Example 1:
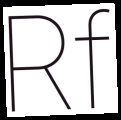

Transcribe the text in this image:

Rf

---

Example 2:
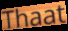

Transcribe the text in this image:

Thaat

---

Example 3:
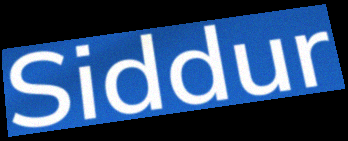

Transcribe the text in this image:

Siddur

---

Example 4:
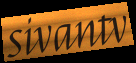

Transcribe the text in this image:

sivantv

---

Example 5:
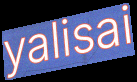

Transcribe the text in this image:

yalisai